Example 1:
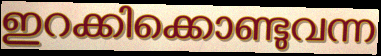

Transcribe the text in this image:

ഇറക്കിക്കൊണ്ടുവന്ന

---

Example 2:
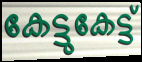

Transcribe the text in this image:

കേട്ടുകേട്ട്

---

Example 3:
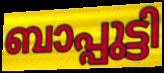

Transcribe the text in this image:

ബാപ്പുട്ടി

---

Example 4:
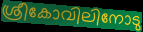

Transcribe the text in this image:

ശ്രീകോവിലിനോടു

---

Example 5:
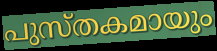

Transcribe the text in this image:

പുസ്തകമായും